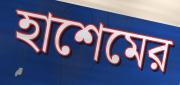
হাশেমের